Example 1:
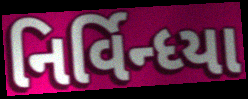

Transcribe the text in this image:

નિર્વિન્ધ્યા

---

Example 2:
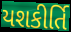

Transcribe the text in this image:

યશકીર્તિ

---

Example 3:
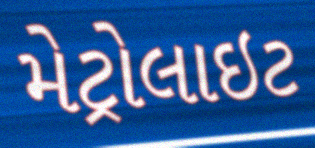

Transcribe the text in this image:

મેટ્રોલાઇટ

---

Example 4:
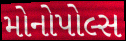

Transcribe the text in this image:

મોનોપોલ્સ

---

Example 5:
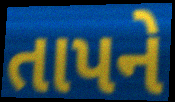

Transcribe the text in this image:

તાપને